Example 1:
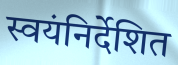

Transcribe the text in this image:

स्वयंनिर्देशित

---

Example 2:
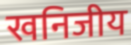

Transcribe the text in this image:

खनिजीय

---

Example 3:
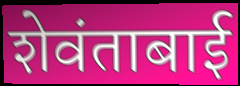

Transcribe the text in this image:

शेवंताबाई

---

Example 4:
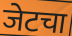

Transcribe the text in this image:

जेटचा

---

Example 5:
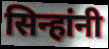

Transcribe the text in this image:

सिन्हांनी